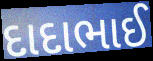
દાદાભાઈ